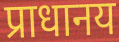
प्राधानय